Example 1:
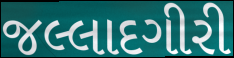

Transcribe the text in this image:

જલ્લાદગીરી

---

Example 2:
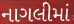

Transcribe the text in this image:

નાગલીમાં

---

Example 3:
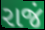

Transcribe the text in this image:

રાજં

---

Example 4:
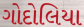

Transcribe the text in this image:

ગોદોલિયા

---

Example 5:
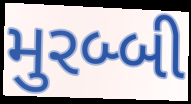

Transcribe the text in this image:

મુરબ્બી